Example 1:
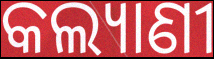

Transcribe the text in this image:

କଲ୍ୟାଣୀ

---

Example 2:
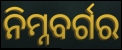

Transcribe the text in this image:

ନିମ୍ନବର୍ଗର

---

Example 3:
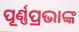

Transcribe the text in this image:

ପୂର୍ଣ୍ଣପ୍ରଭାଙ୍କ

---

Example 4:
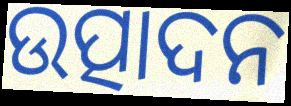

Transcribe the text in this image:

ଉତ୍ପାଦନ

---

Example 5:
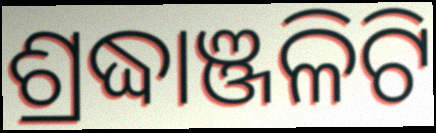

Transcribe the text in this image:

ଶ୍ରଦ୍ଧାଞ୍ଜଳିଟି